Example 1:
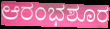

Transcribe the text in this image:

ಆರಂಭಶೂರ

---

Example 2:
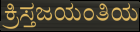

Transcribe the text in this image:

ಕ್ರಿಸ್ತಜಯಂತಿಯ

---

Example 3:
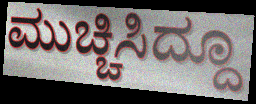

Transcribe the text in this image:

ಮುಚ್ಚಿಸಿದ್ದೂ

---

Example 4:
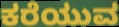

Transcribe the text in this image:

ಕರೆಯುವ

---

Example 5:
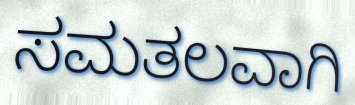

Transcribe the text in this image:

ಸಮತಲವಾಗಿ